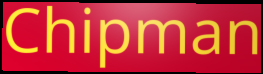
Chipman